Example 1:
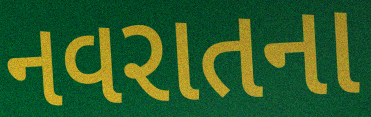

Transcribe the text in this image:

નવરાતના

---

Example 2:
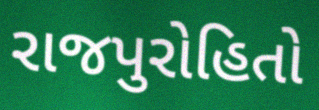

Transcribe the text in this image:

રાજપુરોહિતો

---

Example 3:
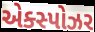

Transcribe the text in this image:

એક્સ્પોઝર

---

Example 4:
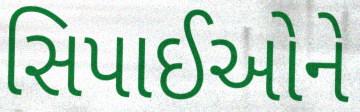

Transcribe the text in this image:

સિપાઈઓને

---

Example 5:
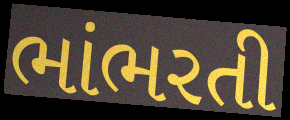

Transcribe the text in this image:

ભાંભરતી